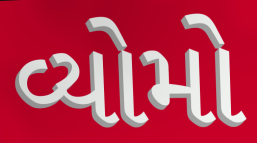
વ્યોમો